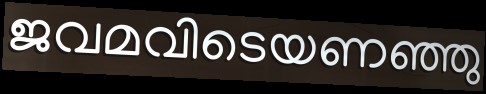
ജവമവിടെയണഞ്ഞു